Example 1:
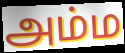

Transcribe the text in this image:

அம்ம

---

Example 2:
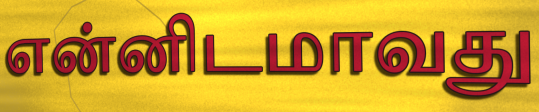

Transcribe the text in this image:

என்னிடமாவது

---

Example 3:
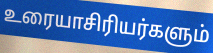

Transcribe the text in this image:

உரையாசிரியர்களும்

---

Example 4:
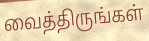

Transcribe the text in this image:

வைத்திருங்கள்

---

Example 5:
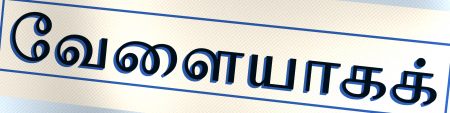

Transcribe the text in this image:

வேளையாகக்